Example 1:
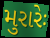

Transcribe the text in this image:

મુરારેઃ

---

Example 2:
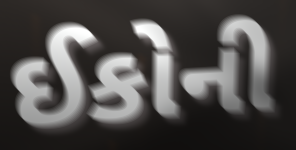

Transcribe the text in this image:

ઈકોની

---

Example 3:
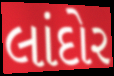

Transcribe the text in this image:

લાંદોર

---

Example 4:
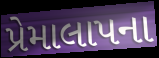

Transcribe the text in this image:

પ્રેમાલાપના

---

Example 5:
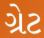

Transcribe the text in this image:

ગ્રેટ